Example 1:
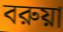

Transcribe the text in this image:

বরুয়া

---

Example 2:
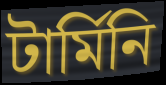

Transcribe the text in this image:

টার্মিনি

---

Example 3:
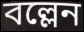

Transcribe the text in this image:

বল্লেন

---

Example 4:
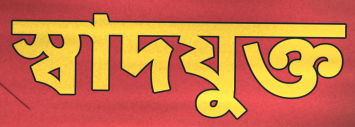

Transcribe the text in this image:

স্বাদযুক্ত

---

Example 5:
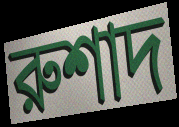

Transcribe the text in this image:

রুশাদ